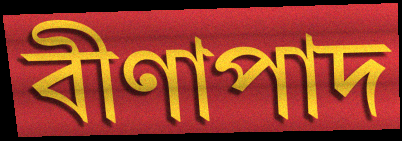
বীণাপাদ